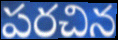
పరచిన